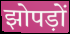
झोपड़ों